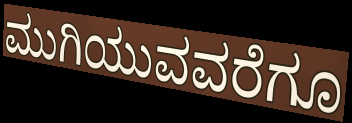
ಮುಗಿಯುವವರೆಗೂ